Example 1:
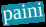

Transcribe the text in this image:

paini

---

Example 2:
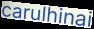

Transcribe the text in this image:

carulhinai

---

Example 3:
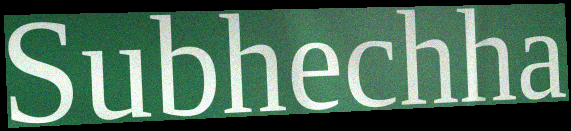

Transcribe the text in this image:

Subhechha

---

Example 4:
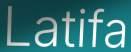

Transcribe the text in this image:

Latifa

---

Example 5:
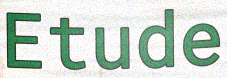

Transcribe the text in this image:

Etude